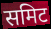
समिट